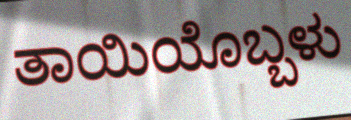
ತಾಯಿಯೊಬ್ಬಳು